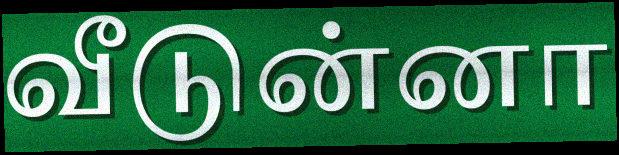
வீடுன்னா